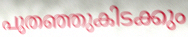
പുതഞ്ഞുകിടക്കും